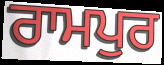
ਰਾਮਪੁਰ